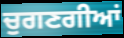
ਚੁਗਣਗੀਆਂ